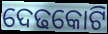
ଦେଢକୋଟି